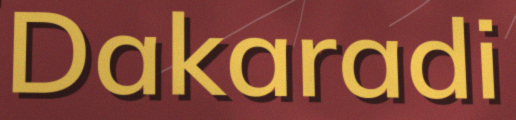
Dakaradi